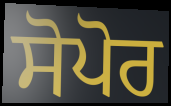
ਸੋਪੋਰ